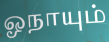
ஓநாயும்